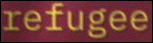
refugee